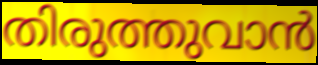
തിരുത്തുവാൻ